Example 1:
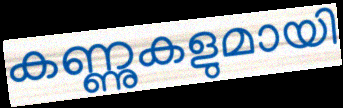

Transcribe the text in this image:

കണ്ണുകളുമായി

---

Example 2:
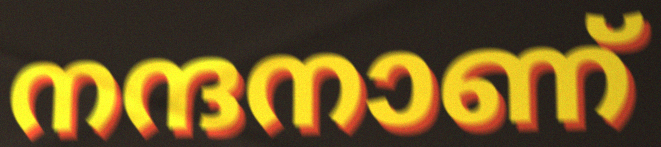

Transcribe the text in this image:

നന്ദനാണ്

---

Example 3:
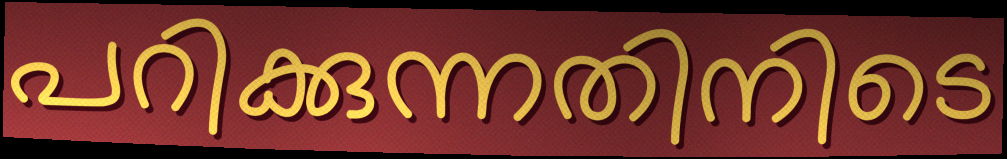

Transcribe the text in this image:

പറിക്കുന്നതിനിടെ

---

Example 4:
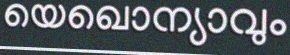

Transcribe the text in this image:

യെഖൊന്യാവും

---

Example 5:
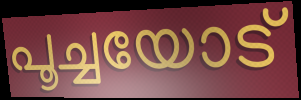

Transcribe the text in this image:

പൂച്ചയോട്